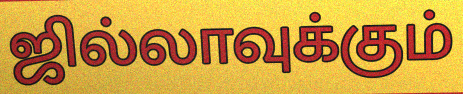
ஜில்லாவுக்கும்